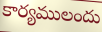
కార్యములందు